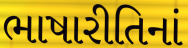
ભાષારીતિનાં